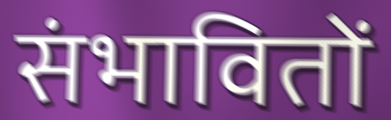
संभावितों